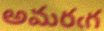
అమరఁగ